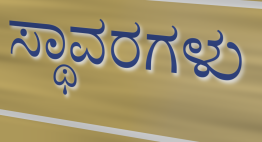
ಸ್ಥಾವರಗಳು